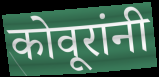
कोवूरांनी